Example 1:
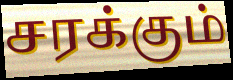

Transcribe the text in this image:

சரக்கும்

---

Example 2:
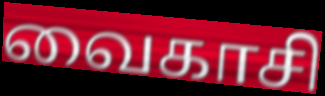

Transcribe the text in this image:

வைகாசி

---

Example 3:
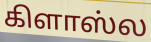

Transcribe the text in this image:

கிளாஸ்ல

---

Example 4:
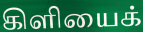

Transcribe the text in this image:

கிளியைக்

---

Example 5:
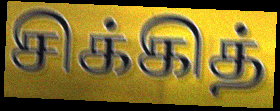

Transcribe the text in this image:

சிக்கித்